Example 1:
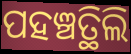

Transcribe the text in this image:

ପହଞ୍ଚତ୍ଥିଲି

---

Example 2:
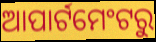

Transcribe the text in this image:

ଆପାର୍ଟମେଂଟରୁ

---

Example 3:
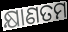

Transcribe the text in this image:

କ୍ଷାଣତମ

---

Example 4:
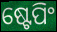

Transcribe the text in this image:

ଷ୍ଟେପିଂ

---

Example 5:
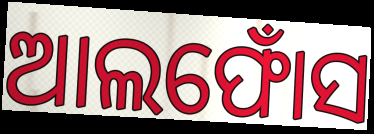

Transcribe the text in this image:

ଆଲଫୋଁସ